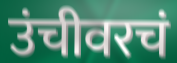
उंचीवरचं